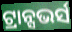
ଟ୍ରାନ୍ସଭର୍ସ